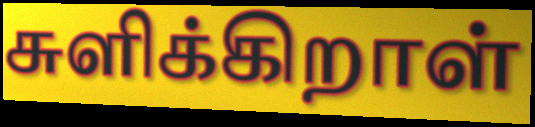
சுளிக்கிறாள்